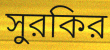
সুরকির